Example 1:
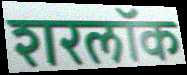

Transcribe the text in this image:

शरलॉक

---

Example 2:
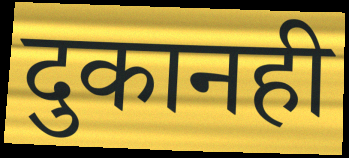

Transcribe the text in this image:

दुकानही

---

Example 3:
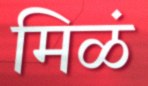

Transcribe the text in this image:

मिळं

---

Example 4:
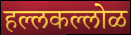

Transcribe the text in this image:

हल्लकल्लोळ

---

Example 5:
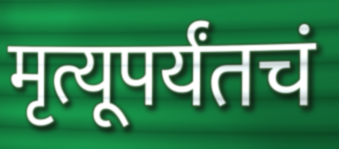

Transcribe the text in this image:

मृत्यूपर्यंतचं